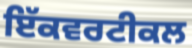
ਇੱਕਵਰਟੀਕਲ